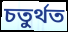
চতুর্থত